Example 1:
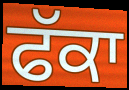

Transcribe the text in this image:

ਫੱਕਾ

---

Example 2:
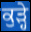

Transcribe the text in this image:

ਕੁੜ੍ਹੇ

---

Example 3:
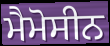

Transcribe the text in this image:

ਮੈਮੋਸੀਨ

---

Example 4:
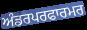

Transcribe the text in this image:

ਅੰਡਰਪਰਫਾਰਮਰ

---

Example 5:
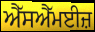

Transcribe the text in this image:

ਐੱਸਐੱਮਈਜ਼